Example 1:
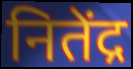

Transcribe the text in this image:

नितेंद्र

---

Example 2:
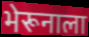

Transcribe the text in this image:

भेरूनाला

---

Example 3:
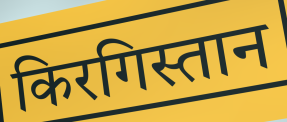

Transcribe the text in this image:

किरगिस्तान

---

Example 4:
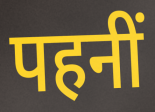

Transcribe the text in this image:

पहनीं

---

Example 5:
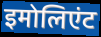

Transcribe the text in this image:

इमोलिएंट